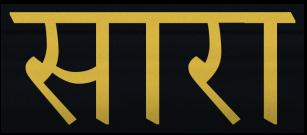
सारा